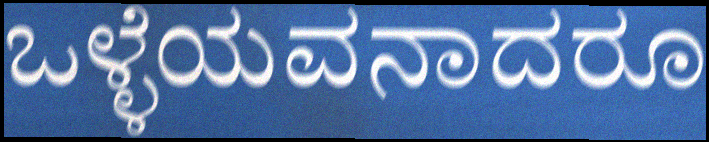
ಒಳ್ಳೆಯವನಾದರೂ